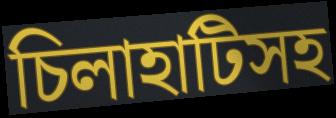
চিলাহাটিসহ